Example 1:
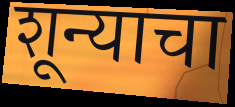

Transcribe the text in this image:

शून्याचा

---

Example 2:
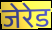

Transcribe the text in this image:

जेरेड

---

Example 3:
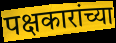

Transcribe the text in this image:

पक्षकारांच्या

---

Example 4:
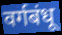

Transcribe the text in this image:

वर्गबंधू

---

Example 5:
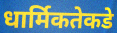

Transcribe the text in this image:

धार्मिकतेकडे